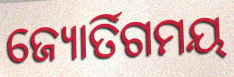
ଜ୍ୟୋର୍ତିଗମୟ